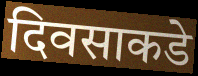
दिवसाकडे